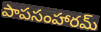
పాపసంహారమ్